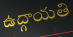
ఉద్గాయతి